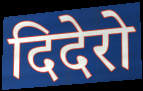
दिदेरो